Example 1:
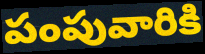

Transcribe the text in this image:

పంపువారికి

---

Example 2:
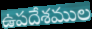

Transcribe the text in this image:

ఉపదేశముల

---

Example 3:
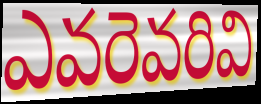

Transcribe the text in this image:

ఎవరెవరివి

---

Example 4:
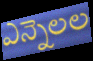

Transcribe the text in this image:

ఎన్నెలల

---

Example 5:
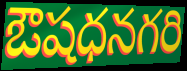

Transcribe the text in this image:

ఔషధనగరి